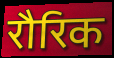
रौरिक